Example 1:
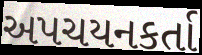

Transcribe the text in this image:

અપચયનકર્તા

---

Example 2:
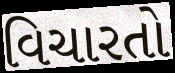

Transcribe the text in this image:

વિચારતો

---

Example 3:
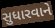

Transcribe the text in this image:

સુધારવાને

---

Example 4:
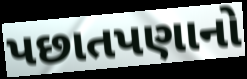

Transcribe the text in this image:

પછાતપણાનો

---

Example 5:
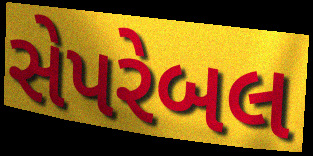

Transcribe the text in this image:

સેપરેબલ